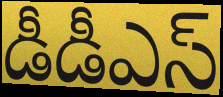
డీడీఎస్